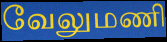
வேலுமணி